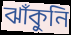
ঝাঁকুনি